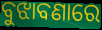
ବୁଝାବଣାରେ